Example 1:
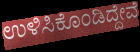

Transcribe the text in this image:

ಉಳಿಸಿಕೊಂಡಿದ್ದೇವೆ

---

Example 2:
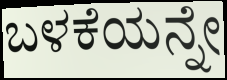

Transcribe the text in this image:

ಬಳಕೆಯನ್ನೇ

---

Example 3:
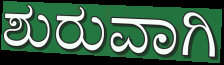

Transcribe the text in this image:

ಶುರುವಾಗಿ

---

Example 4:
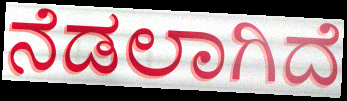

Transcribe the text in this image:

ನೆಡಲಾಗಿದೆ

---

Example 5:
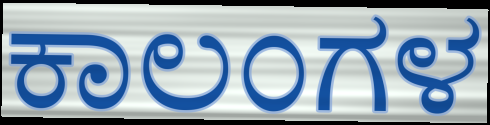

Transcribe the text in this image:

ಕಾಲಂಗಳ